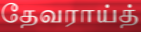
தேவராய்த்